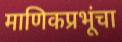
माणिकप्रभूंचा